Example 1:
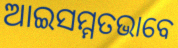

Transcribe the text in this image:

ଆଇସମ୍ମତଭାବେ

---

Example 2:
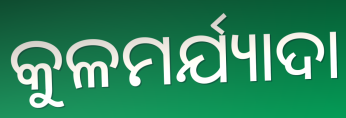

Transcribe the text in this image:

କୁଳମର୍ଯ୍ୟାଦା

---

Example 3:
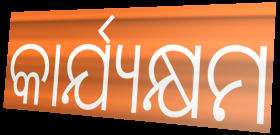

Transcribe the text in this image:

କାର୍ଯ୍ୟକ୍ଷମ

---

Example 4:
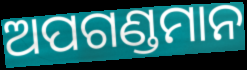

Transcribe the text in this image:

ଅପଗଣ୍ଡମାନ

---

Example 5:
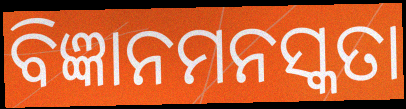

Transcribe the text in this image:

ବିଜ୍ଞାନମନସ୍କତା